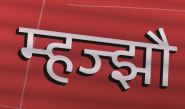
म्हज्झौ